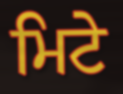
ਮਿਟੇ